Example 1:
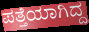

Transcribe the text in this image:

ಪತ್ತೆಯಾಗಿದ್ದ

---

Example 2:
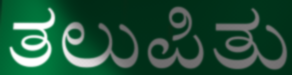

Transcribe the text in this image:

ತಲುಪಿತು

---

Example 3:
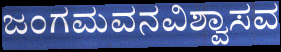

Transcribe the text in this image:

ಜಂಗಮವನವಿಶ್ವಾಸವ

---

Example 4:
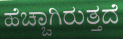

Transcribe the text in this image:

ಹೆಚ್ಚಾಗಿರುತ್ತದೆ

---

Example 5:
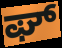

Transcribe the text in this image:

ಘ್